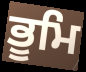
ਭੂਮਿ